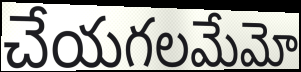
చేయగలమేమో